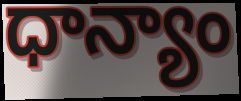
ధాన్యాం